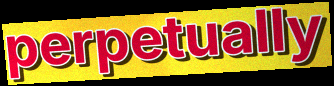
perpetually